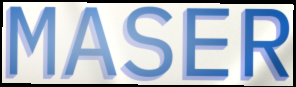
MASER